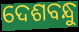
ଦେଶବନ୍ଧୁ